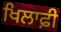
ਖਿਲਾਫ਼ੀ